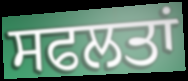
ਸਫਲਤਾਂ